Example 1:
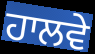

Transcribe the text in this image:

ਹਾਲਵੇ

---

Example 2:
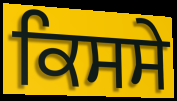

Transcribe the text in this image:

ਕਿਸਸੇ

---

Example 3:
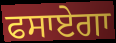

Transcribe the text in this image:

ਫਸਾਏਗਾ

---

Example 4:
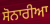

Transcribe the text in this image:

ਸੋਨਾਰੀਆ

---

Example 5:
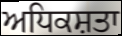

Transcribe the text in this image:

ਅਧਿਕਸ਼ਤਾ